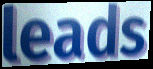
leads